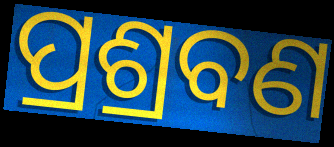
ପ୍ରଶ୍ରବଣ